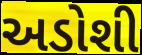
અડોશી